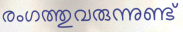
രംഗത്തുവരുന്നുണ്ട്